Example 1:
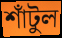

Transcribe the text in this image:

শাঁটুল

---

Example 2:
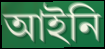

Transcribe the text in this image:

আইনি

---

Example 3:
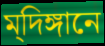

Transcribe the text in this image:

ম্‌দিঙ্গানে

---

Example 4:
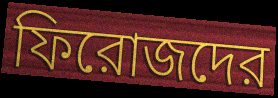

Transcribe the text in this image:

ফিরোজদের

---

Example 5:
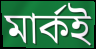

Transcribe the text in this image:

মার্কই